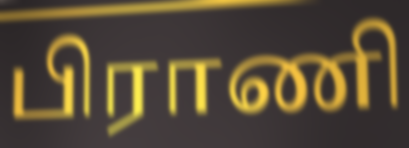
பிராணி